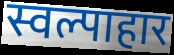
स्वल्पाहार